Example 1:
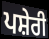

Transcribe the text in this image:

ਪਸ਼ੇਰੀ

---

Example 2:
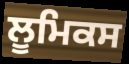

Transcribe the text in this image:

ਲੂਮਿਕਸ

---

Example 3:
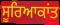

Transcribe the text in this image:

ਸੂਰਿਆਕਾਂਤ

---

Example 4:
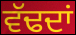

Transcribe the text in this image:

ਵੱਢਦਾਂ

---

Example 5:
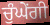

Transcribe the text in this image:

ਚੁੰਘੇਂਗੀ